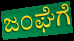
ಜಂಘೆಗೆ